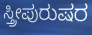
ಸ್ತ್ರೀಪುರುಷರ